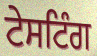
ਟੇਸਟਿੰਗ